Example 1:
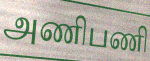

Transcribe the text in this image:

அணிபணி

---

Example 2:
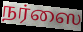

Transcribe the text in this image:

நர்ஸை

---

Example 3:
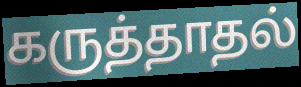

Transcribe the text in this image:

கருத்தாதல்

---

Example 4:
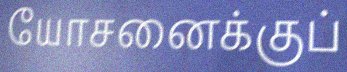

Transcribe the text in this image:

யோசனைக்குப்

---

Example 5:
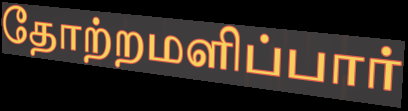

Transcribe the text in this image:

தோற்றமளிப்பார்